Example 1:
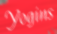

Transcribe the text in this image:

Yogins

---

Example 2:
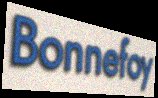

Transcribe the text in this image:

Bonnefoy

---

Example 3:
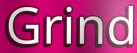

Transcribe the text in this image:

Grind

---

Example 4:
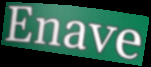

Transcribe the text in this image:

Enave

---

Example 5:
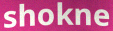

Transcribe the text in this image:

shokne